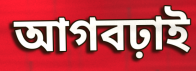
আগবঢ়াই